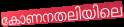
കോണനതലിയിലെ